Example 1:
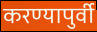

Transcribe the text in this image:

करण्यापुर्वी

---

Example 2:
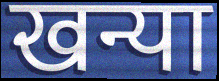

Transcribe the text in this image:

खन्या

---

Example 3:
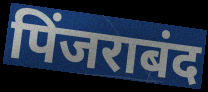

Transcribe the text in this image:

पिंजराबंद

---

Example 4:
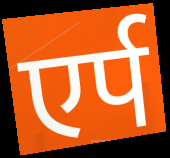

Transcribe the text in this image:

एर्प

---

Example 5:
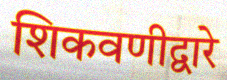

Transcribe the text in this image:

शिकवणीद्वारे